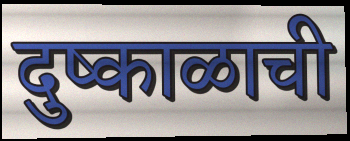
दुष्काळाची